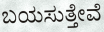
ಬಯಸುತ್ತೇವೆ